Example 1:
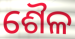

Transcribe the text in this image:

ଶୈଳ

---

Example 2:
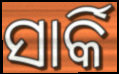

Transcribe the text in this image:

ସାର୍କି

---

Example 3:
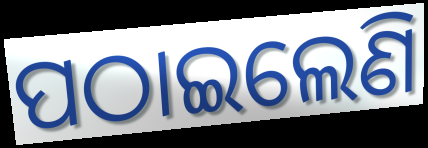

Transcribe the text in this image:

ପଠାଇଲେଣି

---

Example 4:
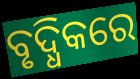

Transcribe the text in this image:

ବୃଦ୍ଧିକରେ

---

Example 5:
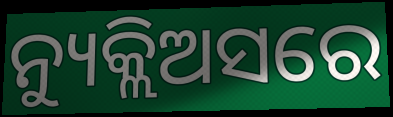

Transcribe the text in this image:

ନ୍ୟୁକ୍ଲିଅସରେ